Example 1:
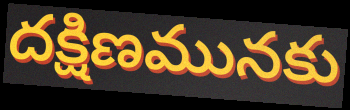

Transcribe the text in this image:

దక్షిణమునకు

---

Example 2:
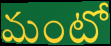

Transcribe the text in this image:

మంటో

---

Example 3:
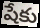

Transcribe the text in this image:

షేకు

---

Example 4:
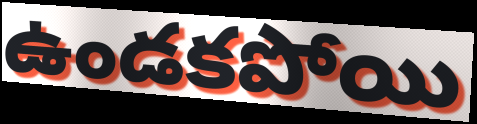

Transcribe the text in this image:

ఉండకపోయి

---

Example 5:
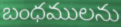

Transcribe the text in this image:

బంధములను